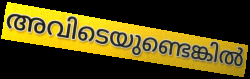
അവിടെയുണ്ടെങ്കിൽ